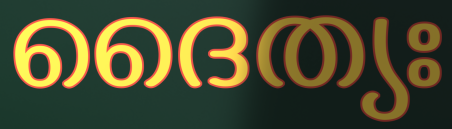
ദൈത്യഃ